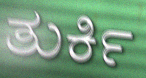
ತುರ್ಕಿ